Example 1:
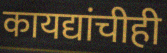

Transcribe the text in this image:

कायद्यांचीही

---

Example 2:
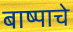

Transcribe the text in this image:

बाष्पाचे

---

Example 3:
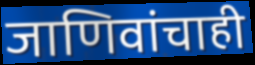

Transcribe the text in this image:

जाणिवांचाही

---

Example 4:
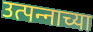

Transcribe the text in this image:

उत्पन्नाच्या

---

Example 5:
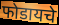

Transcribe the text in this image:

फोडायचे